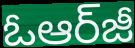
ఓఆర్‌జీ